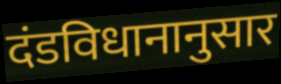
दंडविधानानुसार